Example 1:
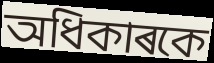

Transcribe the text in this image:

অধিকাৰকে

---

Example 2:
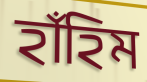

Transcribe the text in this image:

হাঁহিম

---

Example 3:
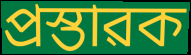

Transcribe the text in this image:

প্ৰস্তাৱক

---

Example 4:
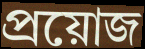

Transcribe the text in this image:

প্ৰয়োজ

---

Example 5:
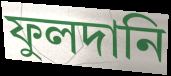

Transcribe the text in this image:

ফুলদানি